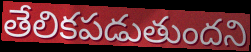
తేలికపడుతుందని